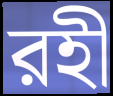
রহী